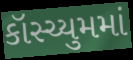
કૉસ્ચ્યુમમાં